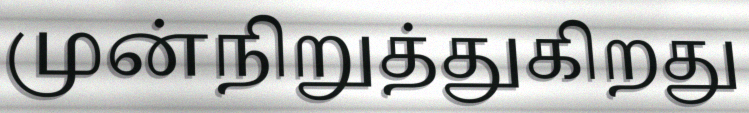
முன்நிறுத்துகிறது